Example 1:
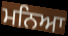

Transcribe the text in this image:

ਮਨਿਆ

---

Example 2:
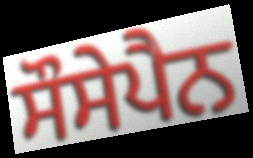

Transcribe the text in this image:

ਸੌਸੇਪੈਨ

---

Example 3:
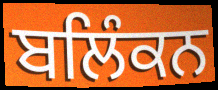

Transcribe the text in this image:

ਬਲਿੰਕਨ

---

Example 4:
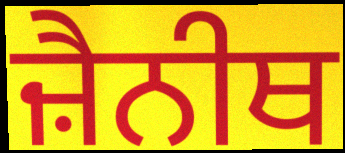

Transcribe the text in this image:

ਜ਼ੈਨੀਥ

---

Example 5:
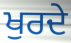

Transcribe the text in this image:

ਖੁਰਦੇ